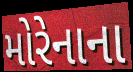
મોરેનાના